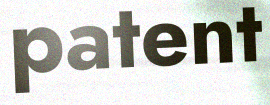
patent